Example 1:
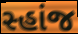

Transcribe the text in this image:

સ્હાંજ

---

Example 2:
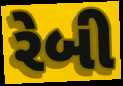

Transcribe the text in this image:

રેબી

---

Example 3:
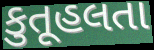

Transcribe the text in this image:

કુતૂહલતા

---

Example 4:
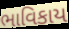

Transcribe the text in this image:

ભાવિકાય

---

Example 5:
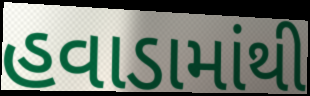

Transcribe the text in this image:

હવાડામાંથી